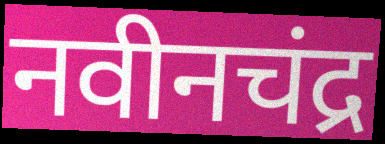
नवीनचंद्र